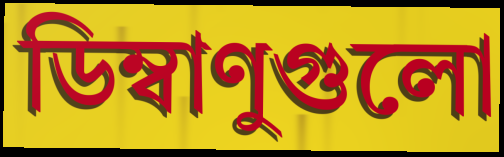
ডিম্বাণুগুলো